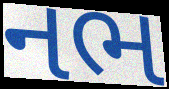
નભ